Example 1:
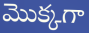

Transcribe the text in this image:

మొక్కగా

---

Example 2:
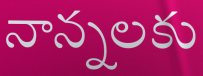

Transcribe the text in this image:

నాన్నలకు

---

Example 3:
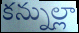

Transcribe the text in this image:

కన్నుల్లా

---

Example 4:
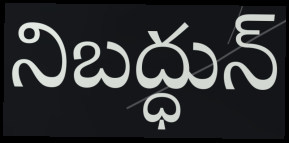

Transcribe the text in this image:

నిబద్ధున్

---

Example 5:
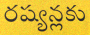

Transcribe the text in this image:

రష్యన్లకు